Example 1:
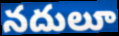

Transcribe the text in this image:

నదులూ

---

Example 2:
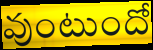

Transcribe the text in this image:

వుంటుందో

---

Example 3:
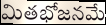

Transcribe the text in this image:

మితభోజనమే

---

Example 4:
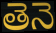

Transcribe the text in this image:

తెనె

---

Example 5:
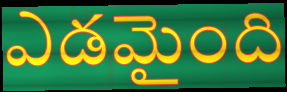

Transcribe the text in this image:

ఎడమైంది